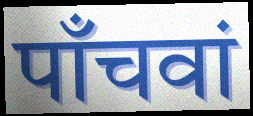
पाँचवां